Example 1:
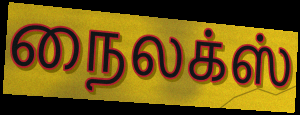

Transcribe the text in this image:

நைலக்ஸ்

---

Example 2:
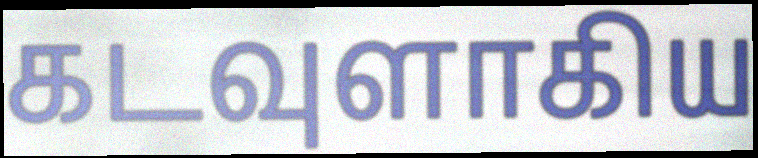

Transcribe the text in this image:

கடவுளாகிய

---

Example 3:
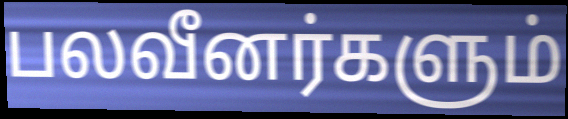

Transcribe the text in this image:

பலவீனர்களும்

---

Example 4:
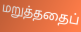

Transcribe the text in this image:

மறுத்ததைப்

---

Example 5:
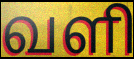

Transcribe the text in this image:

வளி